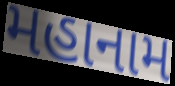
મહાનામ